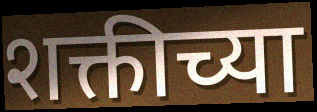
शक्तीच्या